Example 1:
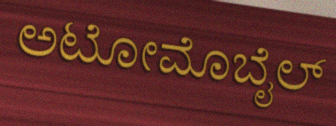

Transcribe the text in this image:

ಅಟೋಮೊಬೈಲ್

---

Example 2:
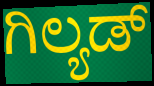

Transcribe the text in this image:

ಗಿಲ್ಯಡ್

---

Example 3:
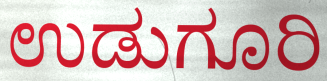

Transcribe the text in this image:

ಉಡುಗೂರಿ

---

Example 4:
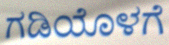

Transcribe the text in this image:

ಗಡಿಯೊಳಗೆ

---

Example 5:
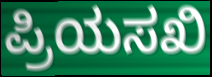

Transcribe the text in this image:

ಪ್ರಿಯಸಖಿ